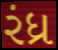
રંધ્ર